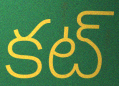
కట్